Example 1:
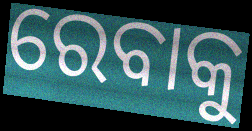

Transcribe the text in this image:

ରେବାକୁ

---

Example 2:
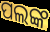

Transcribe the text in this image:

ପଲଙ୍କ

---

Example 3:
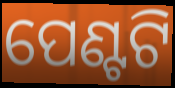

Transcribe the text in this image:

ପେଣ୍ଟଟି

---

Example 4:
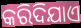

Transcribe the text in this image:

କରିଦିଯାଏ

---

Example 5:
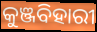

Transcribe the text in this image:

କୁଞ୍ଜବିହାରୀ